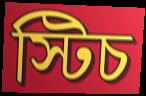
স্টিচ